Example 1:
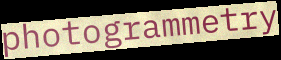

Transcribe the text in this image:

photogrammetry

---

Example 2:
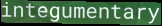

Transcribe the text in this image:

integumentary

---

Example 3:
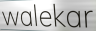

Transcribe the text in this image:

walekar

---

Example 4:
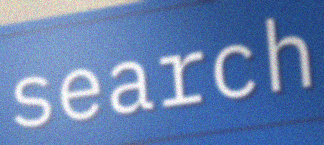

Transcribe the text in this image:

search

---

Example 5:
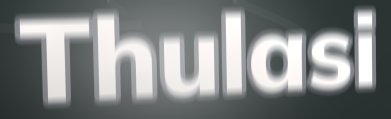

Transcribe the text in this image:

Thulasi